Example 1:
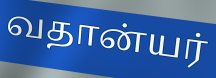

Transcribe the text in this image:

வதான்யர்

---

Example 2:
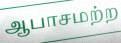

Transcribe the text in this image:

ஆபாசமற்ற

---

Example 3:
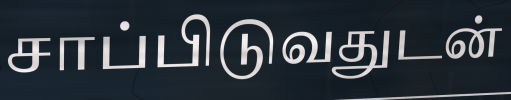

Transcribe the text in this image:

சாப்பிடுவதுடன்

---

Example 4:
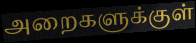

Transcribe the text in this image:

அறைகளுக்குள்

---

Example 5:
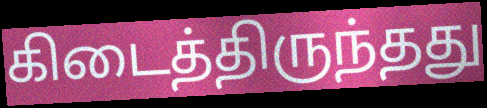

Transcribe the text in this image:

கிடைத்திருந்தது